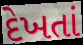
દેખતાં